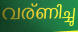
വര്ണിച്ചു